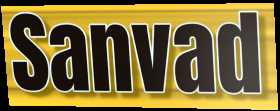
Sanvad